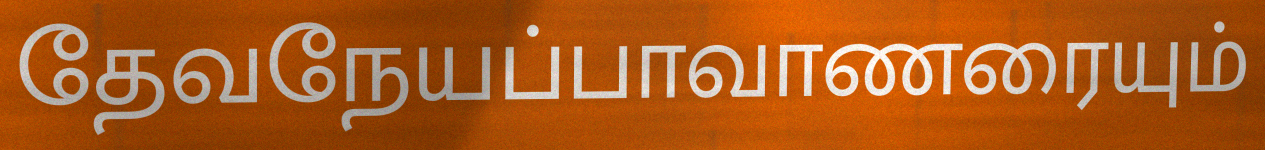
தேவநேயப்பாவாணரையும்